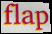
flap